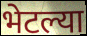
भेटल्या